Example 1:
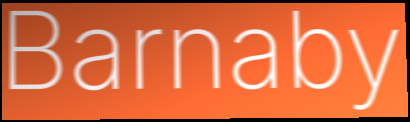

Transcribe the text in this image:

Barnaby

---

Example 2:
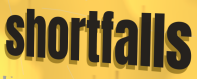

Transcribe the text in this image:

shortfalls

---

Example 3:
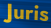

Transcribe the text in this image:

Juris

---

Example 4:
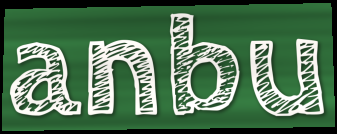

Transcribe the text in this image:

anbu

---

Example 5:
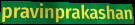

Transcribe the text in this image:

pravinprakashan